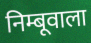
निम्बूवाला